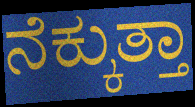
ನೆಕ್ಕುತ್ತಾ